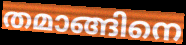
തമാങ്ങിനെ